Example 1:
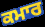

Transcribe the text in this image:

ਕਮਾਰ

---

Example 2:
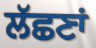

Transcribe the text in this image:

ਲੱਛਣਾਂ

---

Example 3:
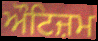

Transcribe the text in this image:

ਔਟਿਜ਼ਮ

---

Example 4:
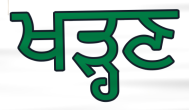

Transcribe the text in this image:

ਖੜ੍ਹਣ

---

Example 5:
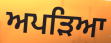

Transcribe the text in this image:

ਅਪੜਿਆ